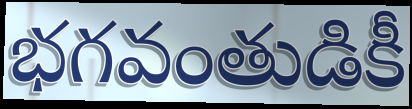
భగవంతుడికీ